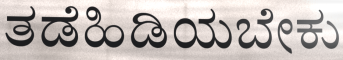
ತಡೆಹಿಡಿಯಬೇಕು